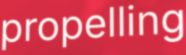
propelling